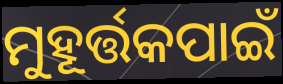
ମୁହୂର୍ତ୍ତକପାଇଁ